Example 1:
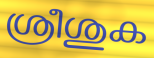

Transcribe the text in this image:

ശ്രീശുക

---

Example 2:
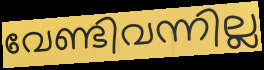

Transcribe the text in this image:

വേണ്ടിവന്നില്ല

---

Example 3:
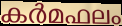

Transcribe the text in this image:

കർമഫലം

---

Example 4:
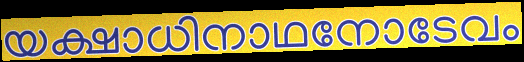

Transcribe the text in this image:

യക്ഷാധിനാഥനോടേവം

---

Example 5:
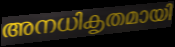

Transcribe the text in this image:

അനധികൃതമായി